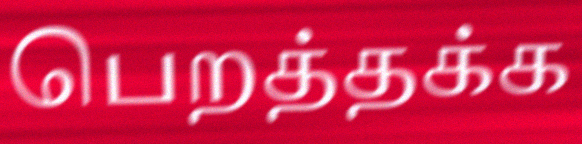
பெறத்தக்க